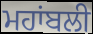
ਮਹਾਂਬਲੀ